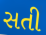
સતી